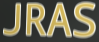
JRAS